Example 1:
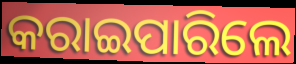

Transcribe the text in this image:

କରାଇପାରିଲେ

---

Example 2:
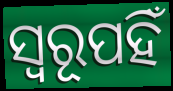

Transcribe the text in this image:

ସ୍ୱରୂପହିଁ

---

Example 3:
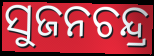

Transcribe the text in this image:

ସୁଜନଚନ୍ଦ୍ର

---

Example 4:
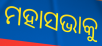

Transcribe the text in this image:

ମହାସଭାକୁ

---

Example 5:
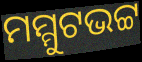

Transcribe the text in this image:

ମମ୍ମୁଟଭଟ୍ଟ